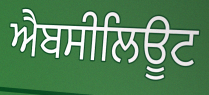
ਐਬਸੀਲਿਊਟ